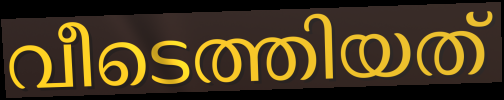
വീടെത്തിയത്